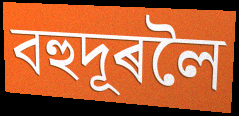
বহুদূৰলৈ